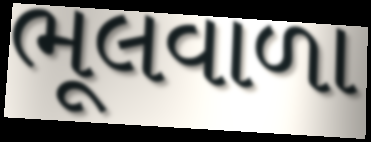
ભૂલવાળા